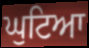
ਘੁਟਿਆ